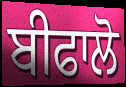
ਬੀਫਾਲੋ